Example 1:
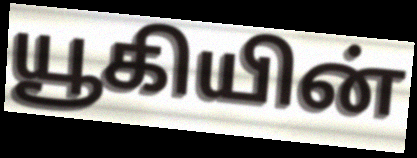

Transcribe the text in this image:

யூகியின்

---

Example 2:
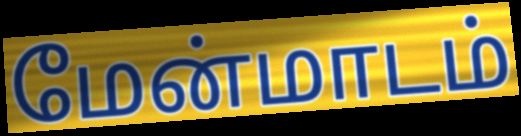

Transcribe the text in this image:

மேன்மாடம்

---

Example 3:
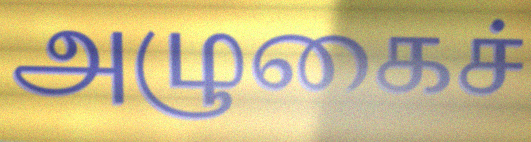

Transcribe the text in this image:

அழுகைச்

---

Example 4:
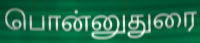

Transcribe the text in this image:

பொன்னுதுரை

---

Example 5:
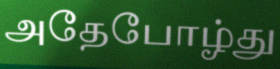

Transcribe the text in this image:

அதேபோழ்து